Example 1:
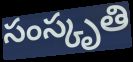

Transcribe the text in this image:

సంస్కృతి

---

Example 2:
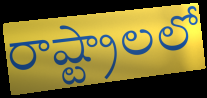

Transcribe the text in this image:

రాష్ట్రాలలో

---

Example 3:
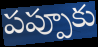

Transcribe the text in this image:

పప్పూకు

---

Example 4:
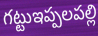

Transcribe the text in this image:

గట్టుఇప్పలపల్లి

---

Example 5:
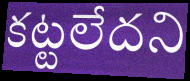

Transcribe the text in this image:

కట్టలేదని